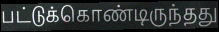
பட்டுக்கொண்டிருந்தது